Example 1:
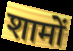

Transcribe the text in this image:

शामों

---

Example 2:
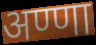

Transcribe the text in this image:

अण्णा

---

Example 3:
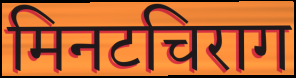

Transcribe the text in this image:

मिनटचिराग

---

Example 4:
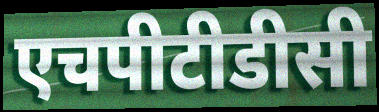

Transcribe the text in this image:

एचपीटीडीसी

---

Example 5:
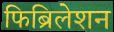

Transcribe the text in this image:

फिब्रिलेशन